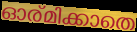
ഓര്മിക്കാതെ